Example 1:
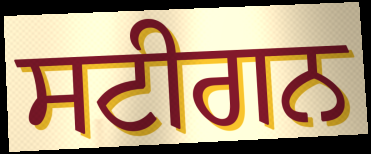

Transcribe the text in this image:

ਸਟੀਗਨ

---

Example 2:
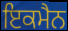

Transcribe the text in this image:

ਇਕਮੈਨ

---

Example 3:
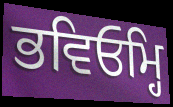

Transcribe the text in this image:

ਭਵਿਓਮ੍ਹਿ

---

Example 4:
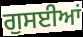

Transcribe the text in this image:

ਗੁਸਈਆਂ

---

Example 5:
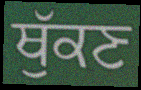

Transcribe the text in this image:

ਥੁੱਕਣ